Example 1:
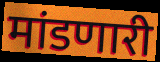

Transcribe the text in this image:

मांडणारी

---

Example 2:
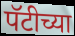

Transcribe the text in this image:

पॅटीच्या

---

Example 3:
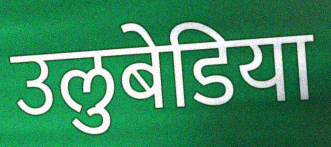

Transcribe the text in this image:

उलुबेडिया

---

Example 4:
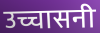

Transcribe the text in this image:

उच्चासनी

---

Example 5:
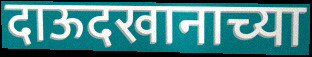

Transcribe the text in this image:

दाऊदखानाच्या